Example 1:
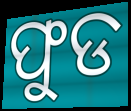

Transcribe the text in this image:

ଫୁଡ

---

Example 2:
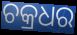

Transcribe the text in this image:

ଚକ୍ରଧର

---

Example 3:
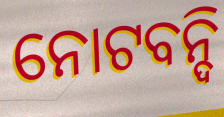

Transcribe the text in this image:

ନୋଟବନ୍ଦି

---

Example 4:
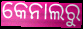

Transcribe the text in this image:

କେନାଲରୁ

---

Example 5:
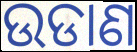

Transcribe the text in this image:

ଉଡାଣ